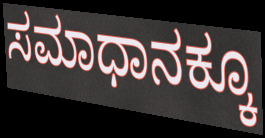
ಸಮಾಧಾನಕ್ಕೂ